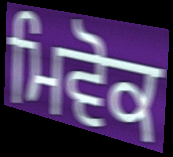
ਮਿਵੋਕ